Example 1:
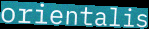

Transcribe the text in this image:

orientalis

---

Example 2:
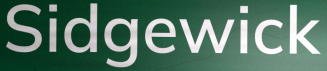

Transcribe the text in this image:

Sidgewick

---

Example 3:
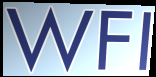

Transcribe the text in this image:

WFI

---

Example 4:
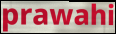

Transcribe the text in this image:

prawahi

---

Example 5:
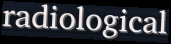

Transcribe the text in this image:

radiological